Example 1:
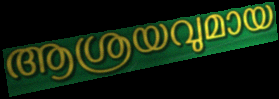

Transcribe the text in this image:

ആശ്രയവുമായ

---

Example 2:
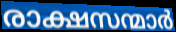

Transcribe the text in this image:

രാക്ഷസന്മാർ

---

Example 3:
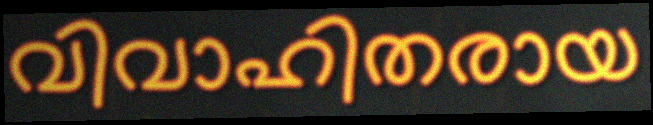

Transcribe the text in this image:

വിവാഹിതരായ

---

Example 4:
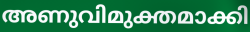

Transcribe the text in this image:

അണുവിമുക്തമാക്കി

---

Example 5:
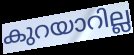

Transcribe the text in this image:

കുറയാറില്ല